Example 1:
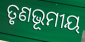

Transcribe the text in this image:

ତୃଣଭୂମୀୟ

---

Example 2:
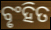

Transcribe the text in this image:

ବୃଂହିତ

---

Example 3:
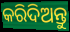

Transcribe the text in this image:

କରିଦିଅନ୍ତୁ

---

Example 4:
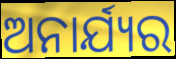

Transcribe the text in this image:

ଅନାର୍ଯ୍ୟର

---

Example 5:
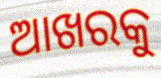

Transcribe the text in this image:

ଆଖରକୁ